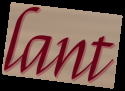
lant